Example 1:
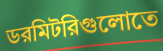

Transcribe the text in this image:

ডরমিটরিগুলোতে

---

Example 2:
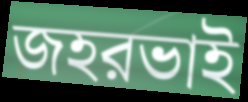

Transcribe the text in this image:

জহরভাই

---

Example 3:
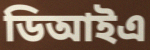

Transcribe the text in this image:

ডিআইএ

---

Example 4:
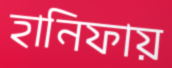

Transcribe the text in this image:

হানিফায়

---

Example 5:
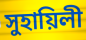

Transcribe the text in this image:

সুহায়িলী